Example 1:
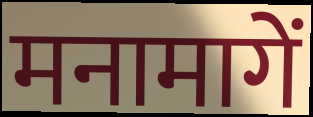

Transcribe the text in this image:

मनामागें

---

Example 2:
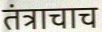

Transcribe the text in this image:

तंत्राचाच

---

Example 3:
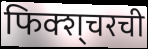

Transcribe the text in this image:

फिक्श्चरची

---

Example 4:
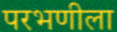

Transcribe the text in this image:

परभणीला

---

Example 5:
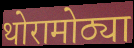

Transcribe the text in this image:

थोरामोठ्या